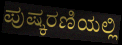
ಪುಷ್ಕರಣಿಯಲ್ಲಿ